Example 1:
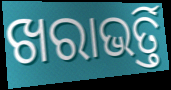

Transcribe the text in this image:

ଖରାଭର୍ତ୍ତି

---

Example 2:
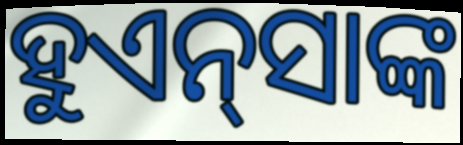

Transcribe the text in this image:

ହୁଏନ୍‍ସାଙ୍କ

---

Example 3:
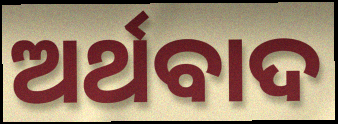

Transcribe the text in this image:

ଅର୍ଥବାଦ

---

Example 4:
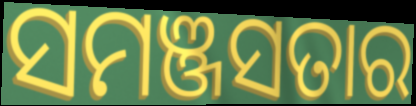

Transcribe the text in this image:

ସମଞ୍ଜସତାର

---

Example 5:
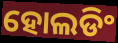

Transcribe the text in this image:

ହୋଲଡିଂ